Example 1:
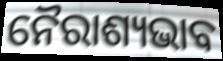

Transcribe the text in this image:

ନୈରାଶ୍ୟଭାବ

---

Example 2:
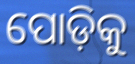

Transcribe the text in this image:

ପୋଡ଼ିକୁ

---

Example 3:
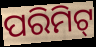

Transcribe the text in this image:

ପରିମିଟ୍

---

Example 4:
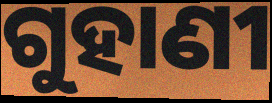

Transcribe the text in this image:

ଗୁହାଣୀ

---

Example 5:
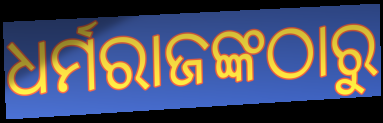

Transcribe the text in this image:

ଧର୍ମରାଜଙ୍କଠାରୁ